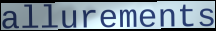
allurements